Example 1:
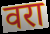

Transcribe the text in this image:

वरा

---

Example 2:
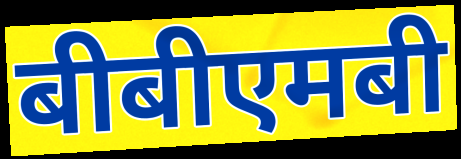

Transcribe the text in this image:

बीबीएमबी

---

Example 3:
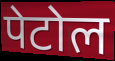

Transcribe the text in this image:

पेटोल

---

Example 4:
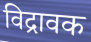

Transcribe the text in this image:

विद्रावक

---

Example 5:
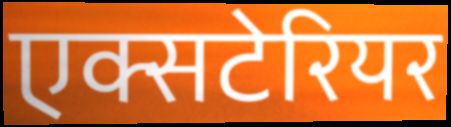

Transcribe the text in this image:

एक्सटेरियर